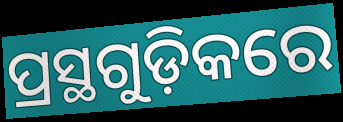
ପ୍ରସ୍ଥଗୁଡ଼ିକରେ